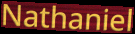
Nathaniel